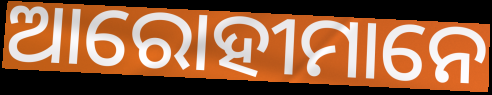
ଆରୋହୀମାନେ